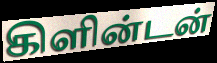
கிளின்டன்